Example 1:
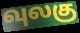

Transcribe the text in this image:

வுலகு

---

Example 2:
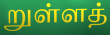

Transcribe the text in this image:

றுள்ளத்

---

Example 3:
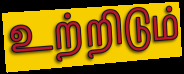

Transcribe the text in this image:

உற்றிடும்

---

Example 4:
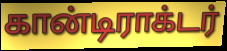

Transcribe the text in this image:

கான்டிராக்டர்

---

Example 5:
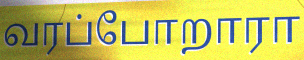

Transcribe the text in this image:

வரப்போறாரா